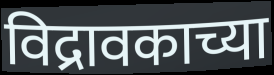
विद्रावकाच्या